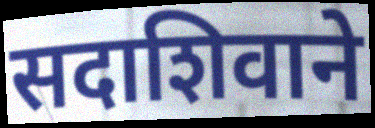
सदाशिवाने